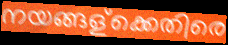
നയങ്ങള്ക്കെതിരെ